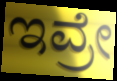
ಇವ್ರೇ